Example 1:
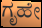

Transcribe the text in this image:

ಗೃಹೇ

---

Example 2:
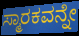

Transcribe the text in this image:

ಸ್ಮಾರಕವನ್ನೇ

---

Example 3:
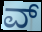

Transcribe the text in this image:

ವ್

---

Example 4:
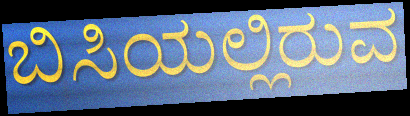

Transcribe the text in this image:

ಬಿಸಿಯಲ್ಲಿರುವ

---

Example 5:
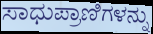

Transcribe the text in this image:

ಸಾಧುಪ್ರಾಣಿಗಳನ್ನು